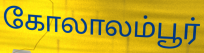
கோலாலம்பூர்